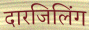
दारजिलिंग